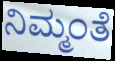
ನಿಮ್ಮಂತೆ